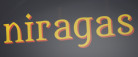
niragas